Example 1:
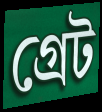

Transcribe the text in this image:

গ্ৰেট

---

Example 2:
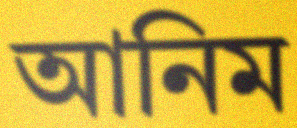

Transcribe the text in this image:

আনিম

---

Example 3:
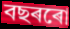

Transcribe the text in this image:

বছৰৰো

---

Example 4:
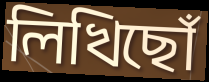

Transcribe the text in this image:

লিখিছোঁ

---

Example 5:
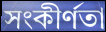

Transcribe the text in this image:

সংকীৰ্ণতা